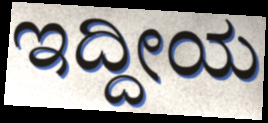
ಇದ್ದೀಯ